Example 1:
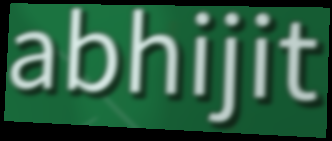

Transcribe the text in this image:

abhijit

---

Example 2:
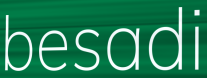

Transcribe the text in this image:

besadi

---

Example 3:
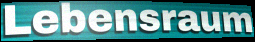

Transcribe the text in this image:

Lebensraum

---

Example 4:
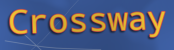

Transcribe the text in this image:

Crossway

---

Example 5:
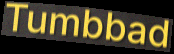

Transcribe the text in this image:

Tumbbad